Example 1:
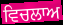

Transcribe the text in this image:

ਵਿਚਲਾਅ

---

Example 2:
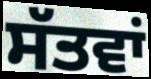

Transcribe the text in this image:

ਸੱਤਵਾਂ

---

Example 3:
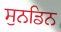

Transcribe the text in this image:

ਸੁਨਡਿਨ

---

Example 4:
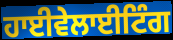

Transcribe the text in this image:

ਹਾਈਵੇਲਾਈਟਿੰਗ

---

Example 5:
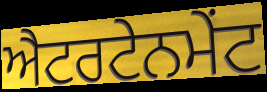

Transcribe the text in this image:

ਐਟਰਟੇਨਮੇਂਟ